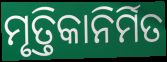
ମୃତ୍ତିକାନିର୍ମିତ